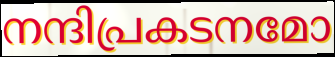
നന്ദിപ്രകടനമോ